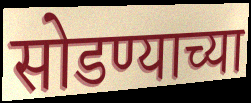
सोडण्याच्या